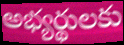
అభ్యర్థులకు